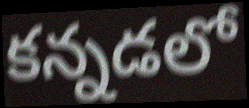
కన్నడలో